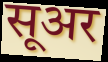
सूअर